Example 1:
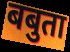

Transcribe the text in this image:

बबुता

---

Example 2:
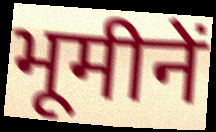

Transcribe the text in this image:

भूमीनें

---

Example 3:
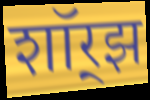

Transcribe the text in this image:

शॉर्झ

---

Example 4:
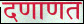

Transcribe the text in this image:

दणाणत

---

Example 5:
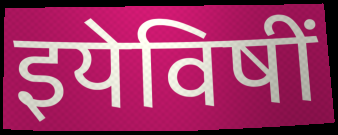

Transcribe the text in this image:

इयेविषीं